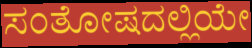
ಸಂತೋಷದಲ್ಲಿಯೇ